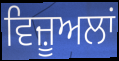
ਵਿਜ਼ੂਅਲਾਂ